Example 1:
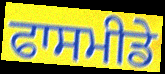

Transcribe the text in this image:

ਫਾਸਮੀਡੇ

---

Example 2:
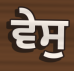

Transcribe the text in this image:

ਵੇਸੁ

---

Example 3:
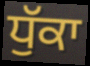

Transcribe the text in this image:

ਧੁੱਕਾ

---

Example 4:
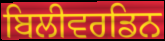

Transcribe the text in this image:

ਬਿਲੀਵਰਡਿਨ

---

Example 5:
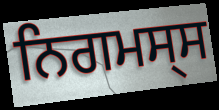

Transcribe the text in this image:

ਨਿਗਮਸ੍ਸ